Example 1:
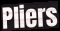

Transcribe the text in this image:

Pliers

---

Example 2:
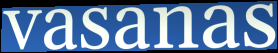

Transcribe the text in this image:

vasanas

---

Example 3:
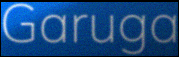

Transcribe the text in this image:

Garuga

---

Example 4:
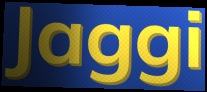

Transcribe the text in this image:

Jaggi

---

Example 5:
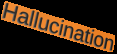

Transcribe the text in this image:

Hallucination